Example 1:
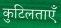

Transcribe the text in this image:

कुटिलताएँ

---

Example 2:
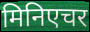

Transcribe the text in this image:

मिनिएचर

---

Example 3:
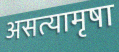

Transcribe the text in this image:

असत्यामृषा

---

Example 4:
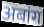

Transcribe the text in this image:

अबांग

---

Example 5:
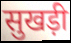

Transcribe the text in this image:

सुखड़ी